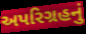
અપરિગ્રહનું